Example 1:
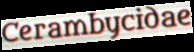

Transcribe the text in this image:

Cerambycidae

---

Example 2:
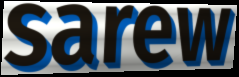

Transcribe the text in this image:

sarew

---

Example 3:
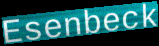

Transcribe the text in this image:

Esenbeck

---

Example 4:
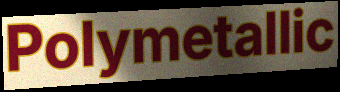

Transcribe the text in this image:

Polymetallic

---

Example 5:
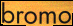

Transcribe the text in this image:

bromo